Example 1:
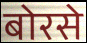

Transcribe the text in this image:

बोरसे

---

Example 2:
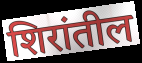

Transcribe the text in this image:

शिरांतील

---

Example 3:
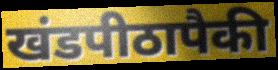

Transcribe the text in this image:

खंडपीठापैकी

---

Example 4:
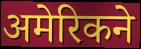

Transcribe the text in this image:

अमेरिकने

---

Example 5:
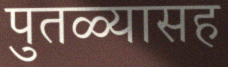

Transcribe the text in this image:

पुतळ्यासह